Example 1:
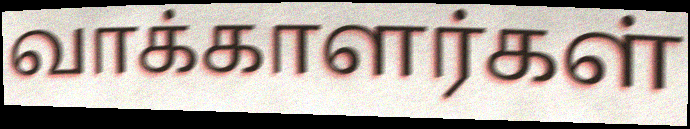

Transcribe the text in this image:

வாக்காளர்கள்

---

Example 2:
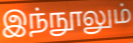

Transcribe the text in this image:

இந்நூலும்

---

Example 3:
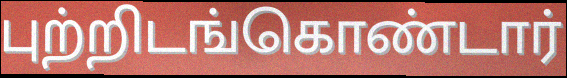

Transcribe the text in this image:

புற்றிடங்கொண்டார்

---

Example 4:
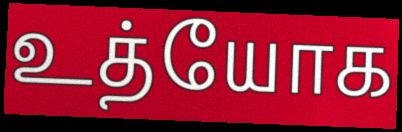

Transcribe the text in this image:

உத்யோக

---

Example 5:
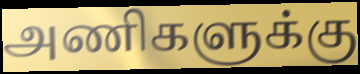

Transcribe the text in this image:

அணிகளுக்கு